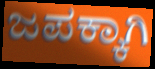
ಜಪಕ್ಕಾಗಿ